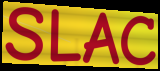
SLAC